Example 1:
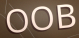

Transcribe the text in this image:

OOB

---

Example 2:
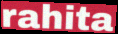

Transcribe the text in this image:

rahita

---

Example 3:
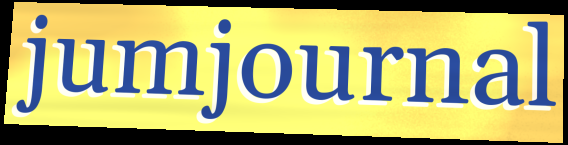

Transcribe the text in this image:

jumjournal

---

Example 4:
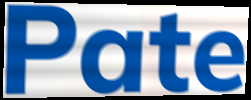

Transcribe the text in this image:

Pate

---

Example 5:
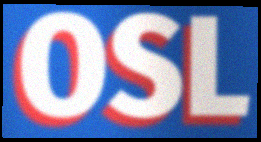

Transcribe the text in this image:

OSL